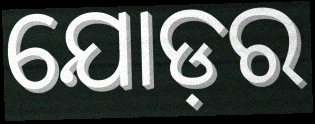
ଯୋଡ଼ର